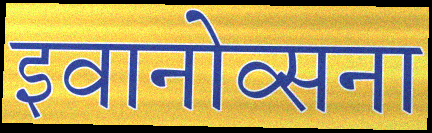
इवानोव्सना